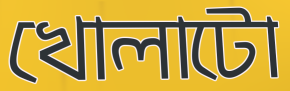
খোলাটো